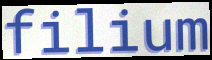
filium